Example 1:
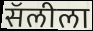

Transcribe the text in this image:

सॅलीला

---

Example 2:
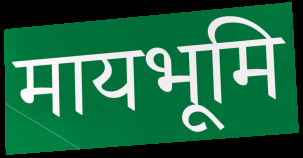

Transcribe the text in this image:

मायभूमि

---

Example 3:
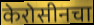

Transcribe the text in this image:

केरोसीनचा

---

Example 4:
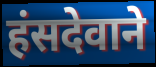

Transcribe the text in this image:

हंसदेवाने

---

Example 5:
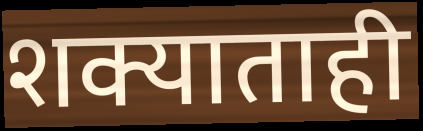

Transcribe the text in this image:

शक्याताही